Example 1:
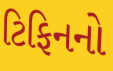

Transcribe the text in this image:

ટિફિનનો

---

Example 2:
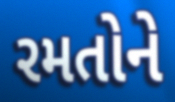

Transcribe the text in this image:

રમતોને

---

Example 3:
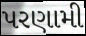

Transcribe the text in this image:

પરણામી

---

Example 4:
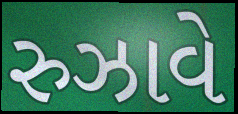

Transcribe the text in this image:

રુઝાવે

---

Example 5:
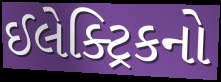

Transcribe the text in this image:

ઈલેક્ટ્રિકનો